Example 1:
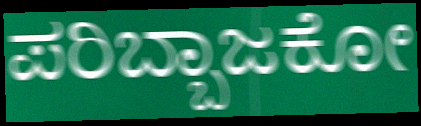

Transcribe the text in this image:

ಪರಿಬ್ಬಾಜಕೋ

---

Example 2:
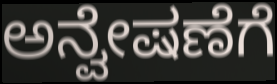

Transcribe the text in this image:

ಅನ್ವೇಷಣೆಗೆ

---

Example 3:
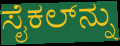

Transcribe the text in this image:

ಸೈಕಲ್‌ನ್ನು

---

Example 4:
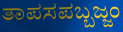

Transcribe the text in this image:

ತಾಪಸಪಬ್ಬಜ್ಜಂ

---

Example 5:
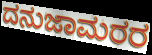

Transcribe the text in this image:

ದನುಜಾಮರರ